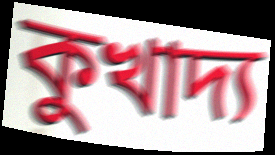
কুখাদ্য